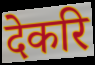
देकरि